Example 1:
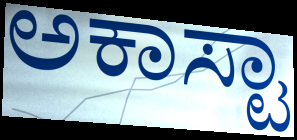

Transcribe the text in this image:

ಅಕಾಸ್ಟಾ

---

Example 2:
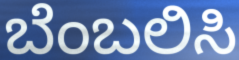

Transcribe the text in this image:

ಬೆಂಬಲಿಸಿ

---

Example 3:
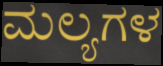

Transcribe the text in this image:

ಮಲ್ಯಗಳ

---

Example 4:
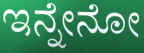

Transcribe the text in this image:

ಇನ್ನೇನೋ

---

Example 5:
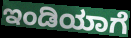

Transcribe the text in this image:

ಇಂಡಿಯಾಗೆ